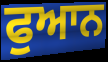
ਫੁਆਨ